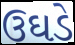
ઉઘડે